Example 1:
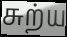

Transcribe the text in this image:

சுற்ய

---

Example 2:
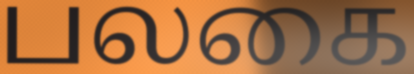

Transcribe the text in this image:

பலகை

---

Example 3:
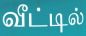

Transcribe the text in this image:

வீட்டில்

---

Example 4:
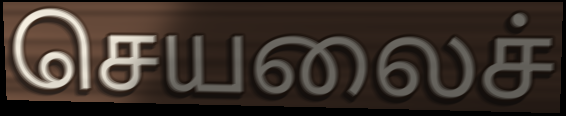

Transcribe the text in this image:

செயலைச்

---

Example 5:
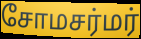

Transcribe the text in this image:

சோமசர்மர்